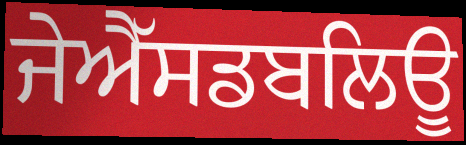
ਜੇਐੱਸਡਬਲਿਊ